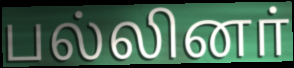
பல்லினர்